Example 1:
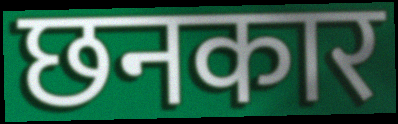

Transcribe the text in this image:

छनकार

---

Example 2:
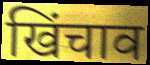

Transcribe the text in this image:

खिंचाव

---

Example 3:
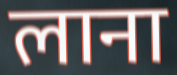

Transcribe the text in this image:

लाना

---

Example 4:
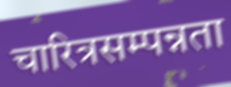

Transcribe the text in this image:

चारित्रसम्पन्नता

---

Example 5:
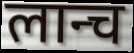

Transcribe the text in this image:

लान्‍च